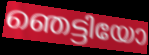
ഞെട്ടിയോ